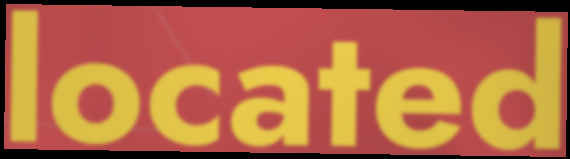
located